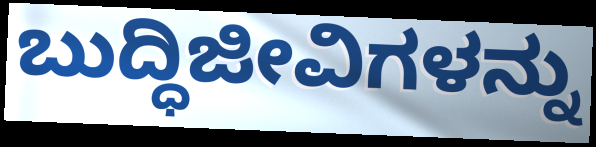
ಬುದ್ಧಿಜೀವಿಗಳನ್ನು